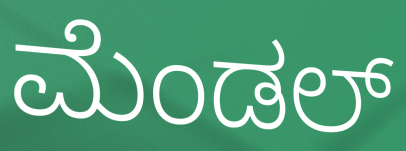
ಮೆಂಡಲ್